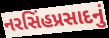
નરસિંહપ્રસાદનું